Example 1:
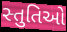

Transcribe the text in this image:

સ્તુતિઓ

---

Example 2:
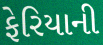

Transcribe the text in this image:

ફેરિયાની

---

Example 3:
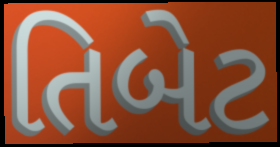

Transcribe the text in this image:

તિબેટ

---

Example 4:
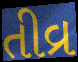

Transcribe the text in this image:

તીવ્ર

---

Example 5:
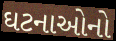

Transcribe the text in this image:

ઘટનાઓનો